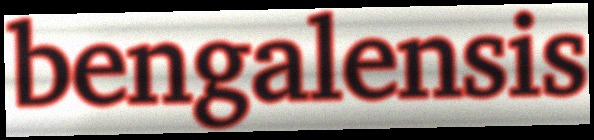
bengalensis